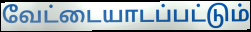
வேட்டையாடப்பட்டும்